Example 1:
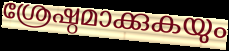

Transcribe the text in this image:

ശ്രേഷ്ഠമാക്കുകയും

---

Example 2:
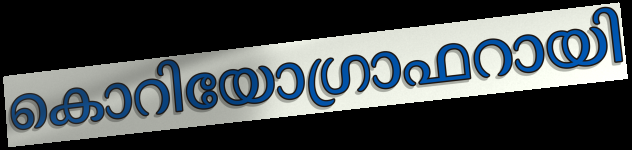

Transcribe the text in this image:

കൊറിയോഗ്രാഫറായി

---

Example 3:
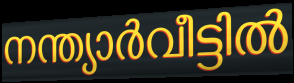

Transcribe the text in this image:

നന്ത്യാർവീട്ടിൽ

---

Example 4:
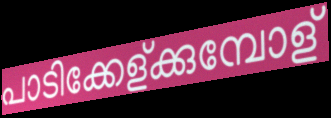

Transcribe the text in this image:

പാടിക്കേള്ക്കുമ്പോള്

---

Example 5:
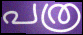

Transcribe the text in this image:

പത്ര